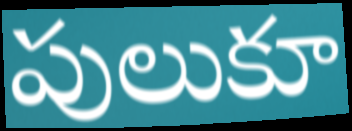
పులుకూ